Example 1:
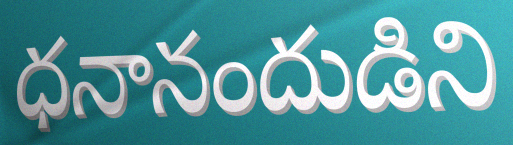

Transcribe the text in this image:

ధనానందుడిని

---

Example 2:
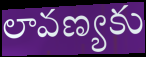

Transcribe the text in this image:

లావణ్యకు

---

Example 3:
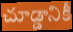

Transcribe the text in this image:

చూడ్డానికీ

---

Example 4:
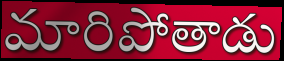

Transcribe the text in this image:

మారిపోతాడు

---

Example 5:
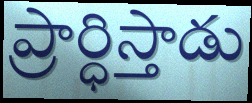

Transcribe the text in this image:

ప్రార్ధిస్తాడు